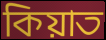
কিয়াত